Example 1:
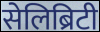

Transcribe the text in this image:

सेलिब्रिटी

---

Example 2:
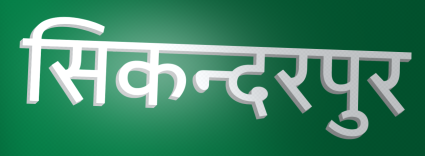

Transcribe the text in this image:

सिकन्दरपुर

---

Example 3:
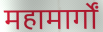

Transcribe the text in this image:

महामार्गों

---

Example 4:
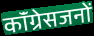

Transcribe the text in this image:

कॉंग्रेसजनों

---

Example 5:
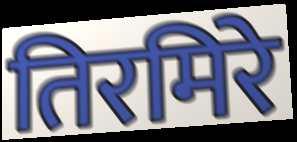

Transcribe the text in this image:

तिरमिरे